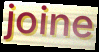
joine